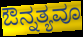
ಔನ್ನತ್ಯವೂ